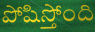
పోషిస్తోంది